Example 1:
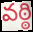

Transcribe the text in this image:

వఠ్ఠి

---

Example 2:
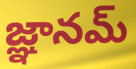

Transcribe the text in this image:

జ్ఞానమ్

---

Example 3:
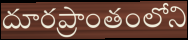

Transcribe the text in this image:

దూరప్రాంతంలోని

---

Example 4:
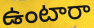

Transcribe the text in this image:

ఉంటారా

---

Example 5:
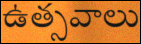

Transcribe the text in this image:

ఉత్సవాలు